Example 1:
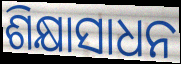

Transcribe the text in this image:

ଶିକ୍ଷାସାଧନ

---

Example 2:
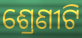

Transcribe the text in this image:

ଶ୍ରେଣୀଟି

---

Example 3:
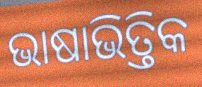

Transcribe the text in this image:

ଭାଷାଭିତ୍ତିକ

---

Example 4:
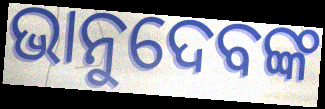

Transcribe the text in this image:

ଭାନୁଦେବଙ୍କ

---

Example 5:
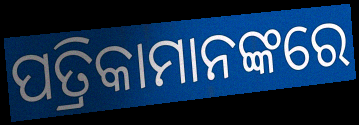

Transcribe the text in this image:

ପତ୍ରିକାମାନଙ୍କରେ